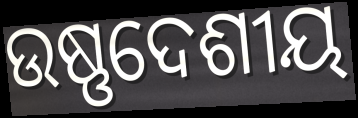
ଉଷ୍ଣଦେଶୀୟ